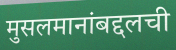
मुसलमानांबद्दलची